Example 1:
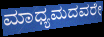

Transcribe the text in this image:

ಮಾಧ್ಯಮದವರೇ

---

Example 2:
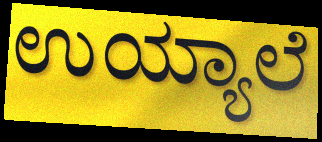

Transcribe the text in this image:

ಉಯ್ಯಾಲೆ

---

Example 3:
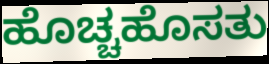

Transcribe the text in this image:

ಹೊಚ್ಚಹೊಸತು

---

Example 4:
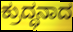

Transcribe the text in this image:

ಕ್ರುದ್ಧನಾದ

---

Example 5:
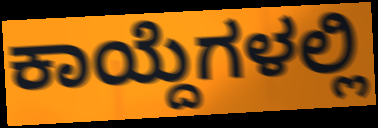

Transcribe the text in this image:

ಕಾಯ್ದೆಗಳಲ್ಲಿ